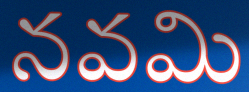
నవమి